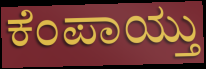
ಕೆಂಪಾಯ್ತು